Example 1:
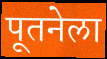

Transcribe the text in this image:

पूतनेला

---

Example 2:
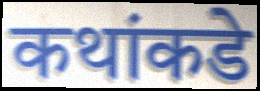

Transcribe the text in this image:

कथांकडे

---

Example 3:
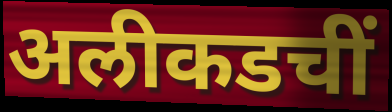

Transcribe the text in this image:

अलीकडचीं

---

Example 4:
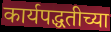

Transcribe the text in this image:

कार्यपद्धतीच्या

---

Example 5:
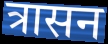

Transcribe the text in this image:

त्रासन